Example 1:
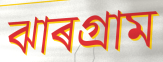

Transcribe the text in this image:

ঝাৰগ্ৰাম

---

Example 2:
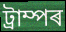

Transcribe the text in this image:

ট্ৰাম্পৰ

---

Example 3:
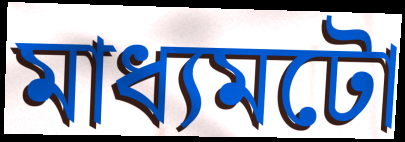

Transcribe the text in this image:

মাধ্যমটো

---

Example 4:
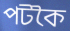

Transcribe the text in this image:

পটকৈ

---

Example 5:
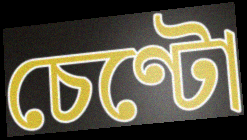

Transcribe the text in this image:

চেণ্টো